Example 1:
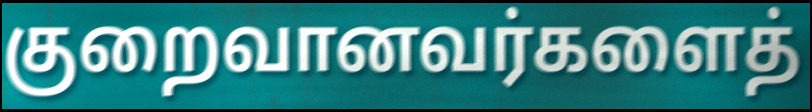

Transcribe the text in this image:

குறைவானவர்களைத்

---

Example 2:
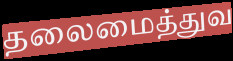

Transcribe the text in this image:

தலைமைத்துவ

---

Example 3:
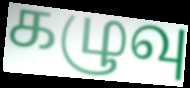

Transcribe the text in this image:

கழுவு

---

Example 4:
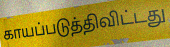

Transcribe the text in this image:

காயப்படுத்திவிட்டது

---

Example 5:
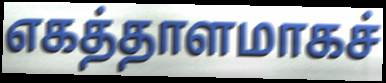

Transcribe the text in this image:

எகத்தாளமாகச்